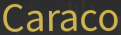
Caraco